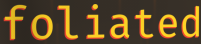
foliated